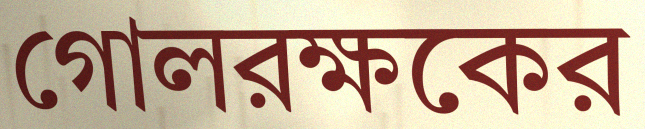
গোলরক্ষকের